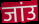
जांउ